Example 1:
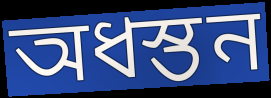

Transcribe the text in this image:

অধস্তন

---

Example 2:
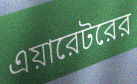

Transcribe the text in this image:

এয়ারেটরের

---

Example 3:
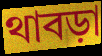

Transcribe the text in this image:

থাবড়া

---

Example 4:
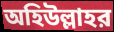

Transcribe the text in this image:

অহিউল্লাহর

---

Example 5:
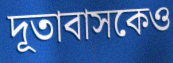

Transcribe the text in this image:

দূতাবাসকেও